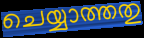
ചെയ്യാത്തതു